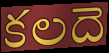
కలదె